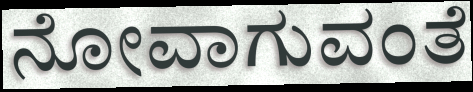
ನೋವಾಗುವಂತೆ